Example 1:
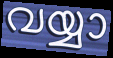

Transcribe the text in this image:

വയ്യാ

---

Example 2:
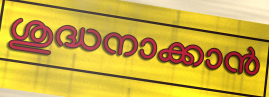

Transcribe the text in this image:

ശുദ്ധനാക്കാൻ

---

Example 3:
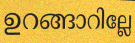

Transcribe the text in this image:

ഉറങ്ങാറില്ലേ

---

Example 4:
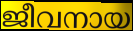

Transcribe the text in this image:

ജീവനായ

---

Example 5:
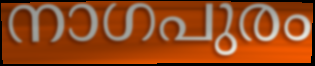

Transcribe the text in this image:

നാഗപുരം